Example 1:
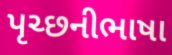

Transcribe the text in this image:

પૃચ્છનીભાષા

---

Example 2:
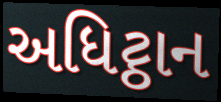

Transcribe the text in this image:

અધિટ્ઠાન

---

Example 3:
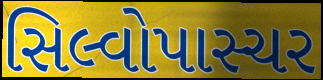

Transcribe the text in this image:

સિલ્વોપાસ્ચર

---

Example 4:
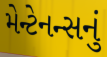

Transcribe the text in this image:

મેન્ટેનન્સનું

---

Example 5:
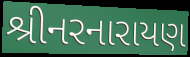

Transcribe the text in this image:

શ્રીનરનારાયણ